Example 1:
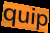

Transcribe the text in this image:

quip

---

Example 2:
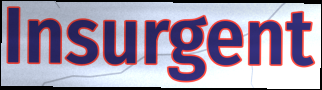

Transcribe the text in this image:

Insurgent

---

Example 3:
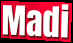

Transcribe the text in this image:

Madi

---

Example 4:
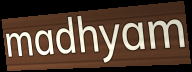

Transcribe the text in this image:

madhyam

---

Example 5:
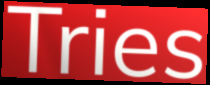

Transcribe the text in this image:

Tries